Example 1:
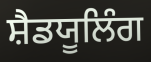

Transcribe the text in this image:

ਸ਼ੈਡਯੂਲਿੰਗ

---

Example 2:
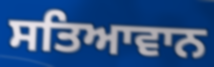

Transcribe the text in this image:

ਸਤਿਆਵਾਨ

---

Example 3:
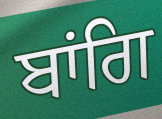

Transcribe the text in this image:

ਬਾਂਗਿ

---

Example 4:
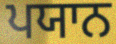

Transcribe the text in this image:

ਪਯਾਨ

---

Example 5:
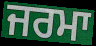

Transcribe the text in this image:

ਜਰਮਾ